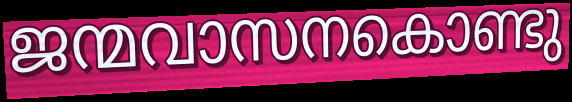
ജന്മവാസനകൊണ്ടു